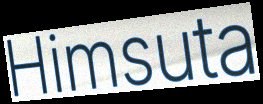
Himsuta